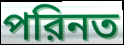
পরিনত